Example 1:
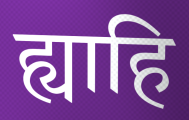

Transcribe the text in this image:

ह्याहि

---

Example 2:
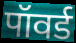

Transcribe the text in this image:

पॉवर्ड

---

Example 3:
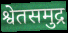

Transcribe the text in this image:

श्वेतसमुद्र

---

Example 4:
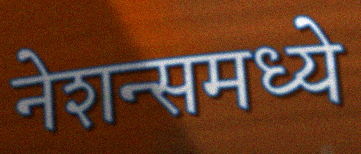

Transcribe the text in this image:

नेशन्समध्ये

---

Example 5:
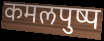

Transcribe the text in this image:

कमलपुष्प